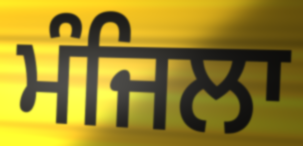
ਮੰਜਿਲਾ